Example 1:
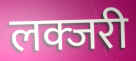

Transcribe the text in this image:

लक्‍जरी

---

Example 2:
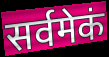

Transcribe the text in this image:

सर्वमेकं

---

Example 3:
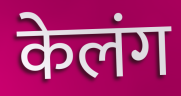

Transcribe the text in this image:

केलंग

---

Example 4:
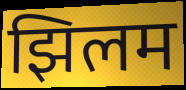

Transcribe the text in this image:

झिलम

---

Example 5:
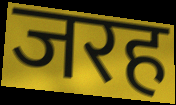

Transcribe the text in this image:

जरह